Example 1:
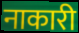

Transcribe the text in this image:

नाकारी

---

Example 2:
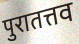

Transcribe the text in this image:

पुरातत्तव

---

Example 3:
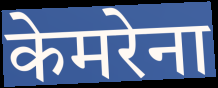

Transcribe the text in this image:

केमरेना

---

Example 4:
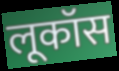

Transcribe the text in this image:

लूकॉस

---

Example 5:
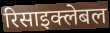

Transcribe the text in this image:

रिसाइक्लेबल